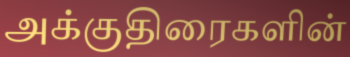
அக்குதிரைகளின்